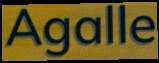
Agalle